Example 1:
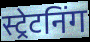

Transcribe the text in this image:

स्ट्रेटनिंग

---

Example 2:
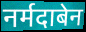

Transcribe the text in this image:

नर्मदाबेन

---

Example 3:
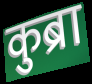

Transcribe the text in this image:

कुब्रा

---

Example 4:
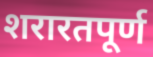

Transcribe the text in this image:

शरारतपूर्ण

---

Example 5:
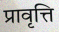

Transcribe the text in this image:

प्रावृत्ति